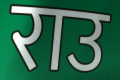
राउ